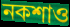
নকশাও